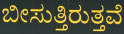
ಬೀಸುತ್ತಿರುತ್ತವೆ